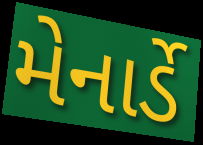
મેનાર્ડે